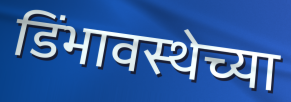
डिंभावस्थेच्या